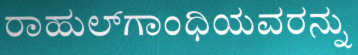
ರಾಹುಲ್‌ಗಾಂಧಿಯವರನ್ನು